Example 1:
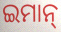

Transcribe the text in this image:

ଇମାନ୍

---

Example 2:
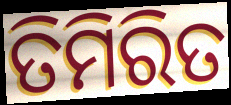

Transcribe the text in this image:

ତିମିରିତ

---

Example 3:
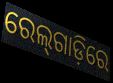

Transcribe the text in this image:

ରେଲ୍‌ଗାଡ଼ିରେ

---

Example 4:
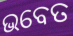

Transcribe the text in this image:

ଭବେତ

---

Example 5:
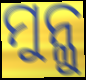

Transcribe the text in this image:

ମୁନ୍ଳୁ